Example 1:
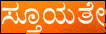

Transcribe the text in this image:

ಸ್ತೂಯತೇ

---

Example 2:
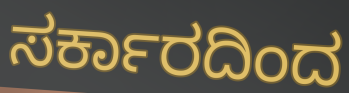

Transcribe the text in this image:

ಸರ್ಕಾರದಿಂದ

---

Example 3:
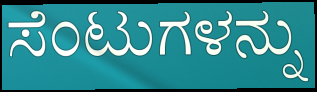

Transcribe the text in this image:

ಸೆಂಟುಗಳನ್ನು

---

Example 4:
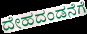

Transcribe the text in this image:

ದೇಹದಂಡನೆಗೆ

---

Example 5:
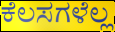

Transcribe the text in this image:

ಕೆಲಸಗಳೆಲ್ಲ